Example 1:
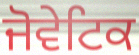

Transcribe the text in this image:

ਜੋਵੇਟਿਕ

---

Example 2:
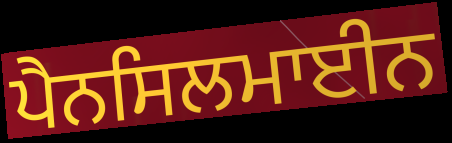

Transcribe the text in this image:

ਪੈਨਸਿਲਮਾਈਨ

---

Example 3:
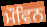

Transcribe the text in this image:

ਮੌਵਿਨ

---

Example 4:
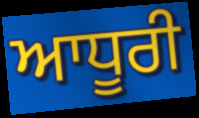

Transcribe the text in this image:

ਆਧੂਰੀ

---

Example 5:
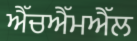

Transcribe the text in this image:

ਐੱਚਐੱਮਐੱਲ